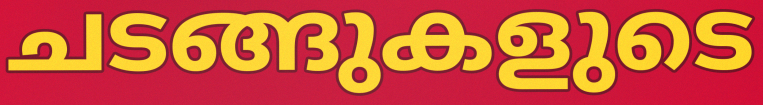
ചടങ്ങുകളുടെ